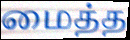
மைத்த